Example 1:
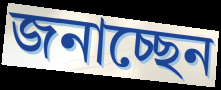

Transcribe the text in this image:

জনাচ্ছেন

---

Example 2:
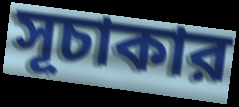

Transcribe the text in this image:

সূচাকার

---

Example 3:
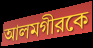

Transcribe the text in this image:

আলমগীরকে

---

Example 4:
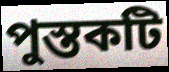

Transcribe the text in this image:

পুস্তকটি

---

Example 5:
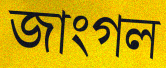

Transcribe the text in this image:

জাংগল